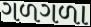
ગળગળા